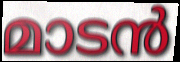
മാടൻ